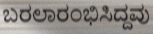
ಬರಲಾರಂಭಿಸಿದ್ದವು